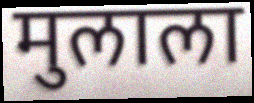
मुलाला